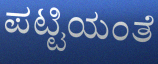
ಪಟ್ಟಿಯಂತೆ